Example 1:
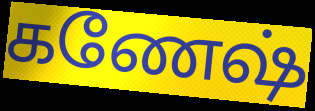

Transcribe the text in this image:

கணேஷ்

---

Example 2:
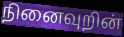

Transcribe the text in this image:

நினைவுறின்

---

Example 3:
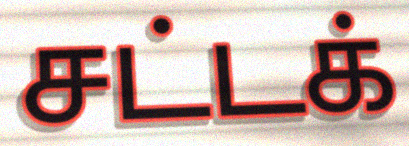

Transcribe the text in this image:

சட்டக்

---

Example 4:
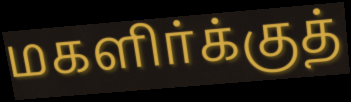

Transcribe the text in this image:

மகளிர்க்குத்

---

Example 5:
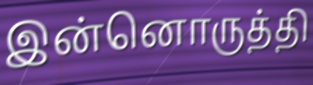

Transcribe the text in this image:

இன்னொருத்தி